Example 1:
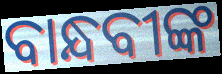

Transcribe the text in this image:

ବାନ୍ଧବୀଙ୍କ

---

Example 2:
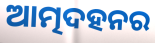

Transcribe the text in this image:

ଆତ୍ମଦହନର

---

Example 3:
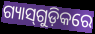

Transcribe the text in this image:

ଗ୍ୟାସ୍‌ଗୁଡ଼ିକରେ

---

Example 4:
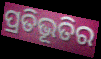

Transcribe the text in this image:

ପ୍ରତିଭୂତିର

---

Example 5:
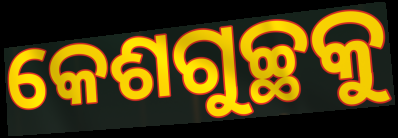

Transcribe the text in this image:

କେଶଗୁଚ୍ଛକୁ